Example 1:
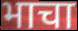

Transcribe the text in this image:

भाचा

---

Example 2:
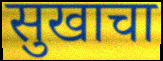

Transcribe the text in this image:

सुखाचा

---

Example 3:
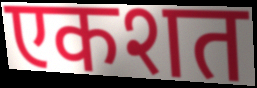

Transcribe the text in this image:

एकशत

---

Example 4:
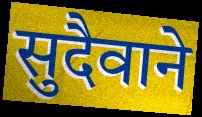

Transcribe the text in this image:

सुदैवाने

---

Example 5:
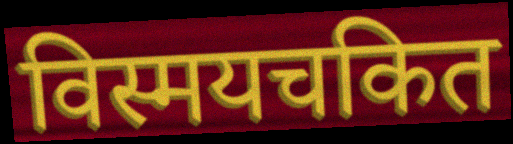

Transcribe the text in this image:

विस्मयचकित